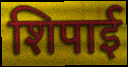
शिपाई